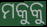
ମକୁକୁ